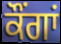
ਕੌਂਗਾਂ